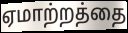
ஏமாற்றத்தை